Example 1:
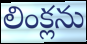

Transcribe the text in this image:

లింక్లను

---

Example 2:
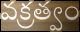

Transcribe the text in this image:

వక్రత్వం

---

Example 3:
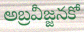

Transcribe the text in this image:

అబ్రవీజ్జనకో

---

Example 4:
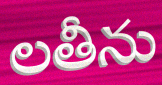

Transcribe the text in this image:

లతీను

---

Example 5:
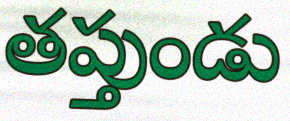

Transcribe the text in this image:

తప్తుండు